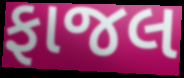
ફાજલ